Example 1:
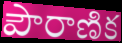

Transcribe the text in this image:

పౌరాణిక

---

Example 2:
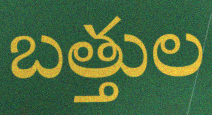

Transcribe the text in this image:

బత్తుల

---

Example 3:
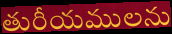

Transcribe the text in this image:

తురీయములను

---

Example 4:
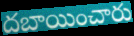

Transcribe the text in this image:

దబాయించారు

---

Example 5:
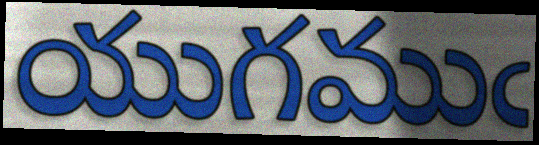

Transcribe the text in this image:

యుగముఁ